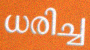
ധരിച്ച